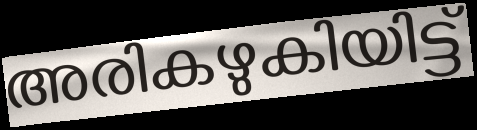
അരികഴുകിയിട്ട്